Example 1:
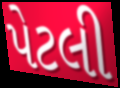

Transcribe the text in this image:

પેટલી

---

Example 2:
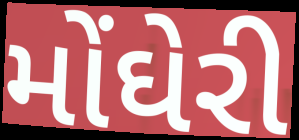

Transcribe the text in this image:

મોંઘેરી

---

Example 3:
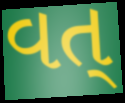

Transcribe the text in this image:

વત્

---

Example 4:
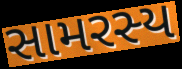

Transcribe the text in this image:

સામરસ્ય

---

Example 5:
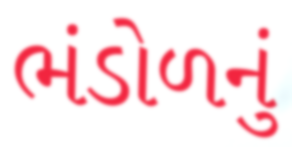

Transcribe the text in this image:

ભંડોળનું